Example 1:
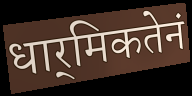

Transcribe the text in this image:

धार्मिकतेनं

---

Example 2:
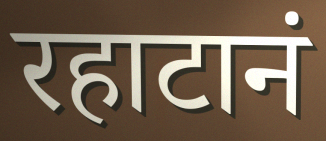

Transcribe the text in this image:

रहाटानं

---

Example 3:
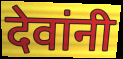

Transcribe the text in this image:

देवांनी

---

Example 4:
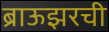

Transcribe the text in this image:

ब्राऊझरची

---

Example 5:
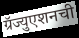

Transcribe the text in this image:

ग्रॅज्युएशनची